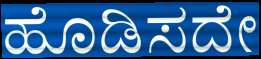
ಹೊಡಿಸದೇ